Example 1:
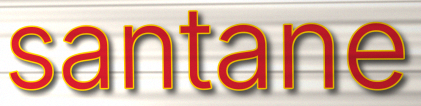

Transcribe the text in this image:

santane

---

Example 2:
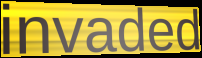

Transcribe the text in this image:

invaded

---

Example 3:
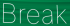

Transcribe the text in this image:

Break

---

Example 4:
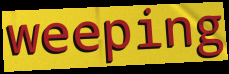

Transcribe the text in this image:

weeping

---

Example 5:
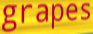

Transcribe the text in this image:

grapes